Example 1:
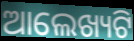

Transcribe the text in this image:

ଆଲେଖ୍ୟଟି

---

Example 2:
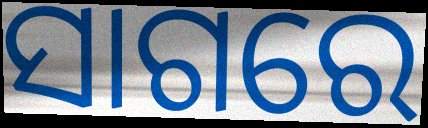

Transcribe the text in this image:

ସାଗରେ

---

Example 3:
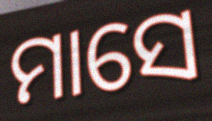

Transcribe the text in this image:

ମାସେ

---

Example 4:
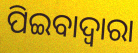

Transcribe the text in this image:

ପିଇବାଦ୍ଵାରା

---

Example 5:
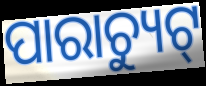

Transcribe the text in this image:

ପାରାଚ୍ୟୁଟ୍